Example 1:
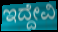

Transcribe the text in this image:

ಇದ್ದೇವಿ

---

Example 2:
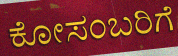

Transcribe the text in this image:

ಕೋಸಂಬರಿಗೆ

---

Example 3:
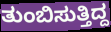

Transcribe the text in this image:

ತುಂಬಿಸುತ್ತಿದ್ದ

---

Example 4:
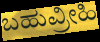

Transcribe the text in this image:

ಬಹುವ್ರೀಹಿ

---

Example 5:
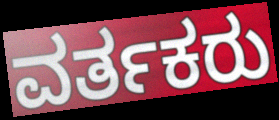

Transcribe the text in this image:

ವರ್ತಕರು